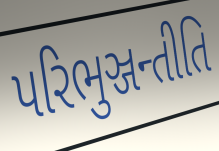
પરિભુઞ્જન્તીતિ